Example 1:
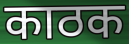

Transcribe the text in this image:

काठक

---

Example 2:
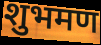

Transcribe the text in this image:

शुभमण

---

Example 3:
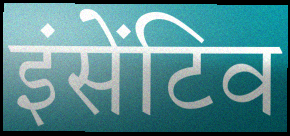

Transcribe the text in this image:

इंसेंटिव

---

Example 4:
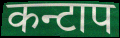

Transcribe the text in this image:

कन्टाप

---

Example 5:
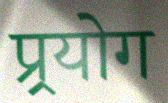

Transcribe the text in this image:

प्र्रयोग